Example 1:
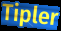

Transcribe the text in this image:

Tipler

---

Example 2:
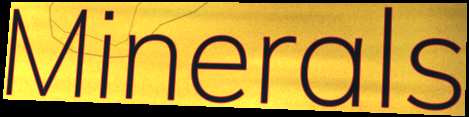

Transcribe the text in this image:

Minerals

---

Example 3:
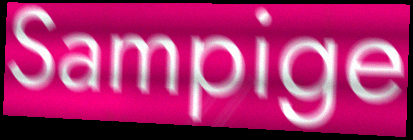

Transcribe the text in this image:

Sampige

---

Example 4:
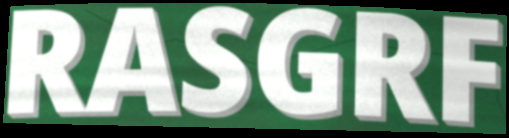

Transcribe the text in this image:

RASGRF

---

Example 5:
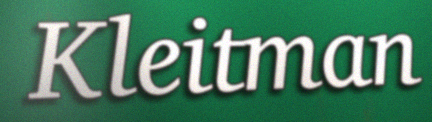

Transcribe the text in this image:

Kleitman